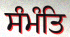
ਸੰਮੰਤਿ